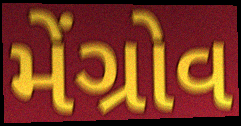
મેંગ્રોવ